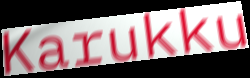
Karukku